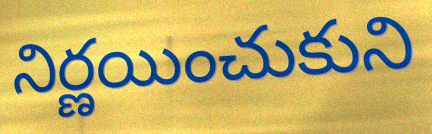
నిర్ణయించుకుని